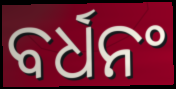
ବର୍ଧନଂ